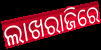
ଲାଖରାଜିରେ